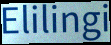
Elilingi